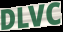
DLVC